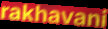
rakhavani